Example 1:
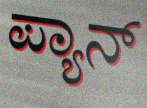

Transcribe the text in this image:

ಪ್ಯಾನ್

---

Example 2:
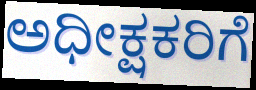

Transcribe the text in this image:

ಅಧೀಕ್ಷಕರಿಗೆ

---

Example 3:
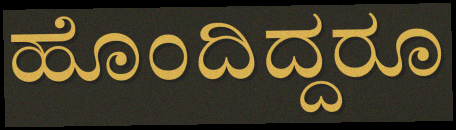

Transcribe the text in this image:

ಹೊಂದಿದ್ದರೂ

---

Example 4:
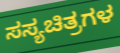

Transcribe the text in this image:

ಸಸ್ಯಚಿತ್ರಗಳ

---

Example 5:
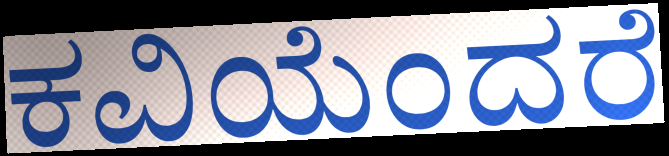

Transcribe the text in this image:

ಕವಿಯೆಂದರೆ